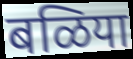
बळिया